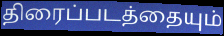
திரைப்படத்தையும்